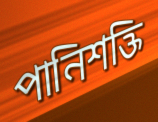
পানিশক্তি